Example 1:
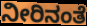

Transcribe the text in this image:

ನೀರಿನಂತೆ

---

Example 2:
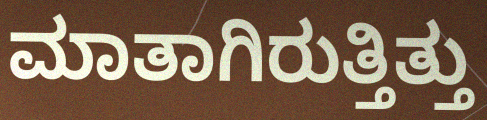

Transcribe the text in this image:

ಮಾತಾಗಿರುತ್ತಿತ್ತು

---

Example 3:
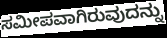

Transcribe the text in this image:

ಸಮೀಪವಾಗಿರುವುದನ್ನು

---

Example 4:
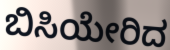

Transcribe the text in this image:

ಬಿಸಿಯೇರಿದ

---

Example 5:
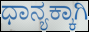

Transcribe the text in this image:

ಧಾನ್ಯಕ್ಕಾಗಿ